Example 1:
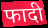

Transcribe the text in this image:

फादी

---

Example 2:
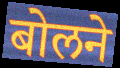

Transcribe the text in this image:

बोलने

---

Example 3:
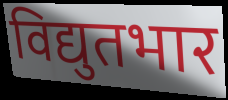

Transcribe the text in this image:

विद्युतभार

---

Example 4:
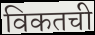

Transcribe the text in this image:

विकतची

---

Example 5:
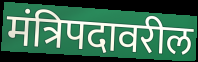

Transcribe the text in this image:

मंत्रिपदावरील